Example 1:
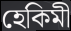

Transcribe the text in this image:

হেকিমী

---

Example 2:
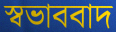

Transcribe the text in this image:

স্বভাববাদ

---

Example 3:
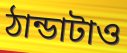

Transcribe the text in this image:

ঠান্ডাটাও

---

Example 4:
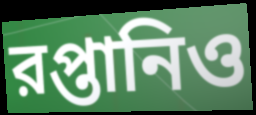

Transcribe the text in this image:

রপ্তানিও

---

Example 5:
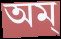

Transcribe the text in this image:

অম্